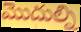
మొదుల్ని